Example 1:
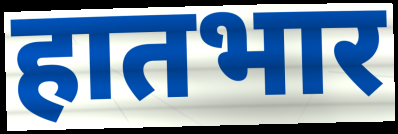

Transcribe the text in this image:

हातभार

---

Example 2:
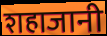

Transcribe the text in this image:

शहाजानी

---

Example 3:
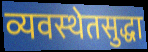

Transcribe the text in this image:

व्यवस्थेतसुद्धा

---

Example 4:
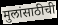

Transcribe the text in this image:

मुलांसाठीची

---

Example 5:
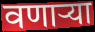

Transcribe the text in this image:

वणाऱ्या